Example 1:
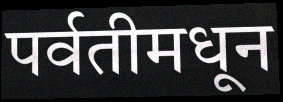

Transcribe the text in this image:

पर्वतीमधून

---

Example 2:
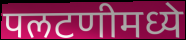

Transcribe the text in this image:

पलटणीमध्ये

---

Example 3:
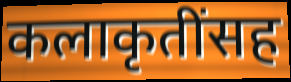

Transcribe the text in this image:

कलाकृतींसह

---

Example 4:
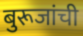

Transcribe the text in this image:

बुरूजांची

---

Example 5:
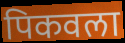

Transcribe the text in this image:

पिकवला